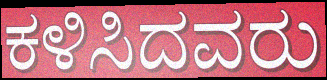
ಕಳಿಸಿದವರು